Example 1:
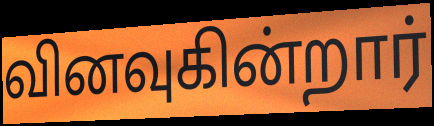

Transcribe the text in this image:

வினவுகின்றார்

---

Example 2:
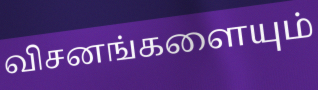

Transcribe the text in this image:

விசனங்களையும்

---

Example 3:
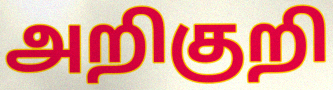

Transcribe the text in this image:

அறிகுறி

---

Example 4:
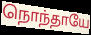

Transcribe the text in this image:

நொந்தாயே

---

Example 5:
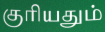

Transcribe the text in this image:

குரியதும்